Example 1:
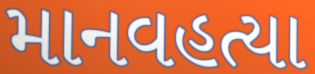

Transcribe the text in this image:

માનવહત્યા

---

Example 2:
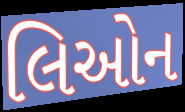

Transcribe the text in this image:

લિઓન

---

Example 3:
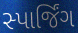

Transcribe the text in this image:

સ્પાર્જિંગ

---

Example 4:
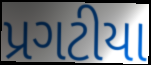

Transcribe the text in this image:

પ્રગટીયા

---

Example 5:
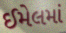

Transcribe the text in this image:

ઈમેલમાં